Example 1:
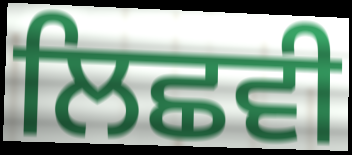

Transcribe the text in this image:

ਲਿਛਵੀ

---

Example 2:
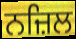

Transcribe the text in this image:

ਨਜ਼ਿਲ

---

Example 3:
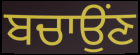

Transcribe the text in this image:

ਬਚਾਉਂਣ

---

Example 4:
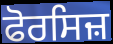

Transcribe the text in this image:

ਫੋਰਸਿਜ਼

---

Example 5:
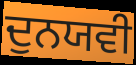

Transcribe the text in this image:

ਦੁਨਯਵੀ